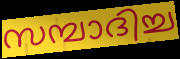
സമ്പാദിച്ച